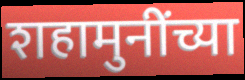
शहामुनींच्या